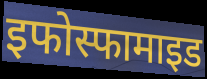
इफोस्फामाइड